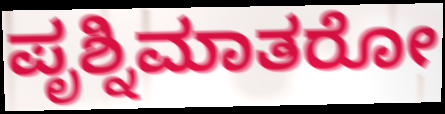
ಪೃಶ್ನಿಮಾತರೋ